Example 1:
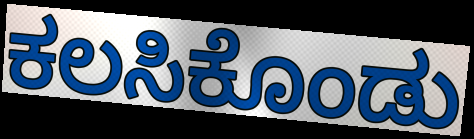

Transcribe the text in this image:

ಕಲಸಿಕೊಂಡು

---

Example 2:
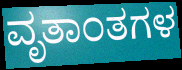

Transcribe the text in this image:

ವೃತಾಂತಗಳ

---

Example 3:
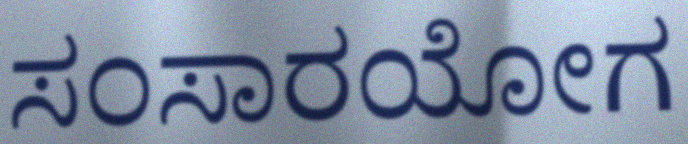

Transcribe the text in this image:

ಸಂಸಾರಯೋಗ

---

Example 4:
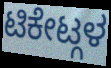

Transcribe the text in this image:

ಟಿಕೇಟ್ಗಳ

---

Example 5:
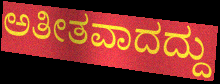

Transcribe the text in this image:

ಅತೀತವಾದದ್ದು